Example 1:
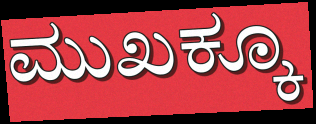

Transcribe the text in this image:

ಮುಖಕ್ಕೂ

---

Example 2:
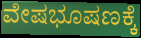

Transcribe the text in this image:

ವೇಷಭೂಷಣಕ್ಕೆ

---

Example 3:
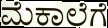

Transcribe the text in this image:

ಮೆಕಾಲೆಗೆ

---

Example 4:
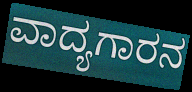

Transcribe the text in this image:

ವಾದ್ಯಗಾರನ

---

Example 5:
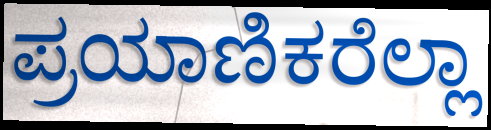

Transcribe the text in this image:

ಪ್ರಯಾಣಿಕರೆಲ್ಲಾ